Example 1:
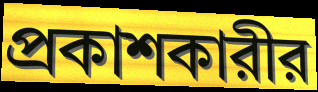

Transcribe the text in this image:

প্রকাশকারীর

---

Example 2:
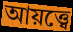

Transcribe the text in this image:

আয়ত্ত্বে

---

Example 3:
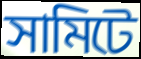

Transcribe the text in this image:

সামিটে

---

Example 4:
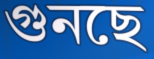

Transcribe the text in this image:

গুনছে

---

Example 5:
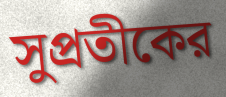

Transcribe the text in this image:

সুপ্রতীকের